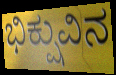
ಭಿಕ್ಷುವಿನ